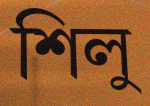
শিলু